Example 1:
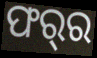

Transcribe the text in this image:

ଫର୍‌ର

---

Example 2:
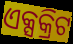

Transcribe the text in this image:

ଏକ୍ସକ୍ରିଟ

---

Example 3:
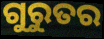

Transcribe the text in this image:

ଗୁରୁତର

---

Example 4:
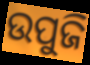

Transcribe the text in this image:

ଉପୁଜି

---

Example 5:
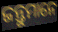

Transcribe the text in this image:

ଜନ୍ତୁମାନେ